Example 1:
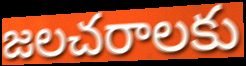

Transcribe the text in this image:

జలచరాలకు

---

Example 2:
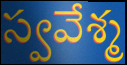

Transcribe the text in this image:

స్వవేశ్మ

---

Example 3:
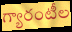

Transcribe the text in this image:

గ్యారంటీల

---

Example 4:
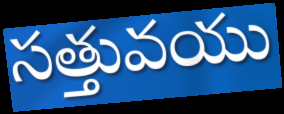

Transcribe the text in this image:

సత్తువయు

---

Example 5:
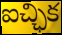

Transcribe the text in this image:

ఐచ్ఛిక